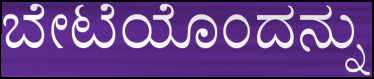
ಬೇಟೆಯೊಂದನ್ನು